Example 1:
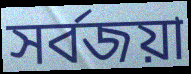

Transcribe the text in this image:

সর্বজয়া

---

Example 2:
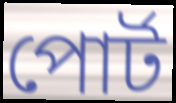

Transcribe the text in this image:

পোর্ট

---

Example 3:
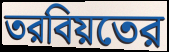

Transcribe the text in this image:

তরবিয়তের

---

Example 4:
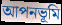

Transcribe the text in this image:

আপনভূমি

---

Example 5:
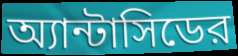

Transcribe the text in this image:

অ্যান্টাসিডের